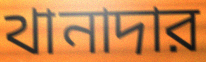
থানাদার